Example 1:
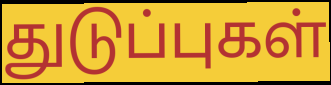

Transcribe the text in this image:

துடுப்புகள்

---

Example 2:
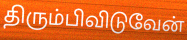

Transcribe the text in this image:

திரும்பிவிடுவேன்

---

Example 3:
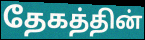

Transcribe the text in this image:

தேகத்தின்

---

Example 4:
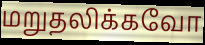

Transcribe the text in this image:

மறுதலிக்கவோ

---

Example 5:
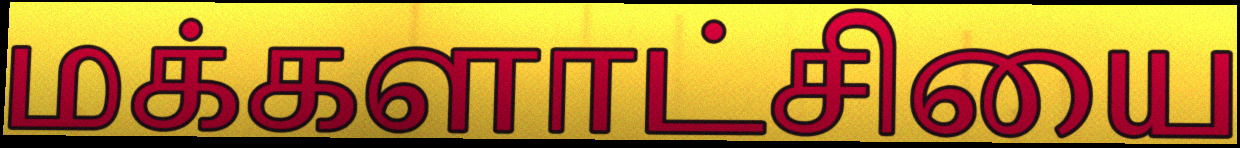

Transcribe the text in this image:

மக்களாட்சியை